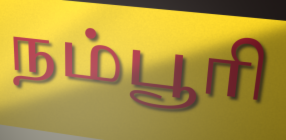
நம்பூரி